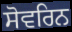
ਸੋਵਰਿਨ